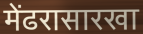
मेंढरासारखा